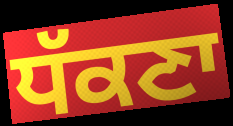
ਧੱਕਣਾ